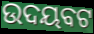
ଉଦୟବଟ